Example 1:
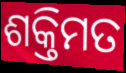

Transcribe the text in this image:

ଶକ୍ତିମତ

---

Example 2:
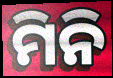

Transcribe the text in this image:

ମିନି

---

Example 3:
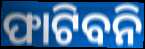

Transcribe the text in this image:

ଫାଟିବନି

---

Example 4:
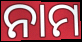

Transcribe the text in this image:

ନାମ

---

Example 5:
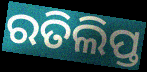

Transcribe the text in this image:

ରତିଲିପ୍ତ